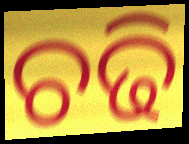
ଚଢି